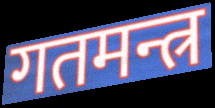
गतमन्त्र